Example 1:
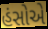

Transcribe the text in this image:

હંસોએ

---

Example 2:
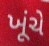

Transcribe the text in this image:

ખૂંચે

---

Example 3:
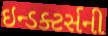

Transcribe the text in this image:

ઇન્ડક્ટર્સની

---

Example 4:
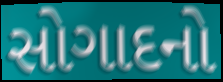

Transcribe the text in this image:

સોગાદનો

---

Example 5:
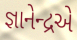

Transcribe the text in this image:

જ્ઞાનેન્દ્રએ